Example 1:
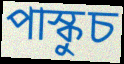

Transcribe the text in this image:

পাস্কুচ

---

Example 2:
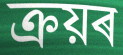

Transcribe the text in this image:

ক্ৰয়ৰ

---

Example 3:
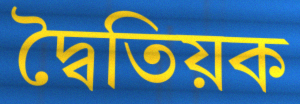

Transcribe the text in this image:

দ্বৈতিয়ক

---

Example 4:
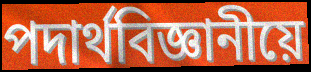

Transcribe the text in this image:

পদাৰ্থবিজ্ঞানীয়ে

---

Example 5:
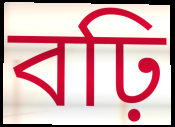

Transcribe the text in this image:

বঢ়ি